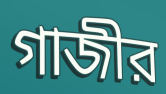
গাজীর